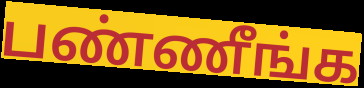
பண்ணீங்க